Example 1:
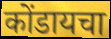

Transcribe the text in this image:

कोंडायचा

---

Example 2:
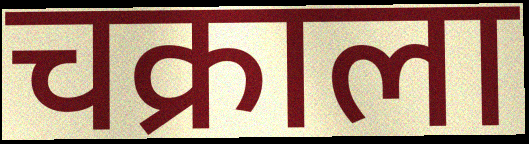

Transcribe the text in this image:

चक्राला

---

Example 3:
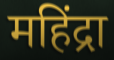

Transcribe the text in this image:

महिंद्रा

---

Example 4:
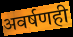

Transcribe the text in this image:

अवर्षणही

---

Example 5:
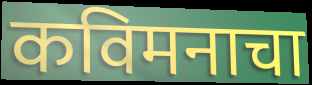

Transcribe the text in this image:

कविमनाचा